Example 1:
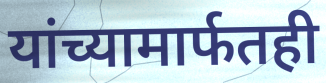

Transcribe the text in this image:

यांच्यामार्फतही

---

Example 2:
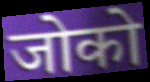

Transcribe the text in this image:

जोको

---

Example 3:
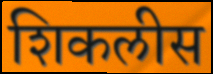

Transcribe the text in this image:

शिकलीस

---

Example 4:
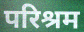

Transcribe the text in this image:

परिश्रम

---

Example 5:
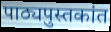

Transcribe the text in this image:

पाठ्यपुस्तकांत